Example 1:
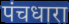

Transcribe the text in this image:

पंचधारा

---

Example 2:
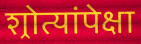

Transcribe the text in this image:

श्रोत्यांपेक्षा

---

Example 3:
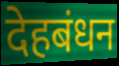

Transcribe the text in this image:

देहबंधन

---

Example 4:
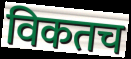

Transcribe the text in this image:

विकतच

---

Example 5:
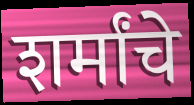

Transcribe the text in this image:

शर्मांचे